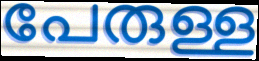
പേരുള്ള